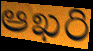
ఆఖరి